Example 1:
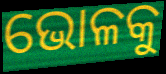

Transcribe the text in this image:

ଭୋଳକୁ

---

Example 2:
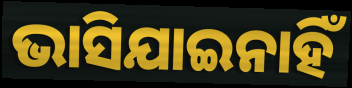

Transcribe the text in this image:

ଭାସିଯାଇନାହିଁ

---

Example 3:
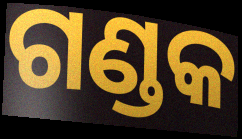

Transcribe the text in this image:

ଗଣ୍ଡକ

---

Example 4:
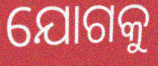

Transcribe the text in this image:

ଯୋଗକୁ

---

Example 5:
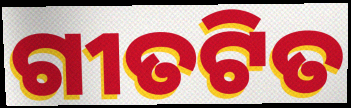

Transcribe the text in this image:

ଗୀତଟିତ